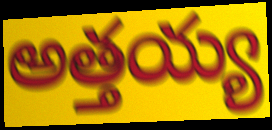
అత్తయ్య